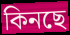
কিনছে